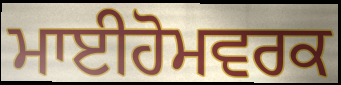
ਮਾਈਹੋਮਵਰਕ